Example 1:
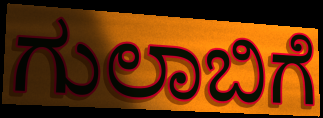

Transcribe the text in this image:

ಗುಲಾಬಿಗೆ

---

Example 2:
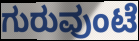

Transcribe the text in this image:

ಗುರುವುಂಟೆ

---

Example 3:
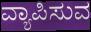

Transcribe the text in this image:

ವ್ಯಾಪಿಸುವ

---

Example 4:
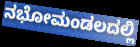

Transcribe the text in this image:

ನಭೋಮಂಡಲದಲ್ಲಿ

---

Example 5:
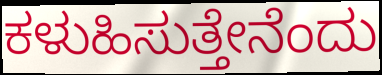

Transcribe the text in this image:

ಕಳುಹಿಸುತ್ತೇನೆಂದು